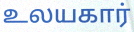
உலயகார்